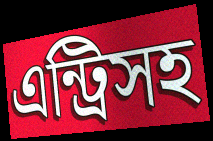
এন্ট্রিসহ